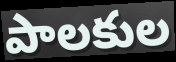
పాలకుల